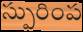
స్పురింప